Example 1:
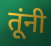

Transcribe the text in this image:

तूंनी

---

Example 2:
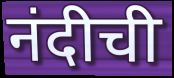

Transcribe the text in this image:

नंदीची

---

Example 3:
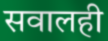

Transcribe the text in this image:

सवालही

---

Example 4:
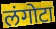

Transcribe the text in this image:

लंगोटा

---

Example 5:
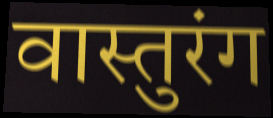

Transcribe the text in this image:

वास्तुरंग